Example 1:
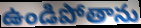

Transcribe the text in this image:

ఉండిపోతాను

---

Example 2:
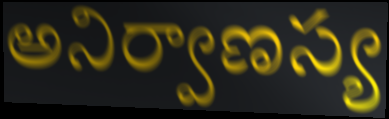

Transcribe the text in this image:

అనిర్వాణస్య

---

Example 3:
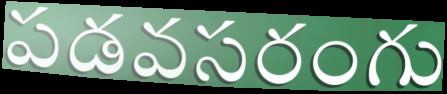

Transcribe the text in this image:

పడవసరంగు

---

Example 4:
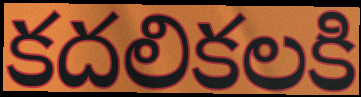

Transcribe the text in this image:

కదలికలకి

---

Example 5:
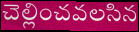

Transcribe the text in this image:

చెల్లించవలసిన